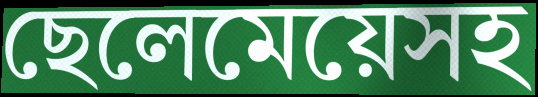
ছেলেমেয়েসহ